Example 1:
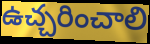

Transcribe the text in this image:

ఉచ్చరించాలి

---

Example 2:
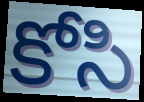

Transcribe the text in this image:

కోసి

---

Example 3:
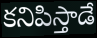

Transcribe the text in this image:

కనిపిస్తాడే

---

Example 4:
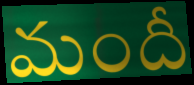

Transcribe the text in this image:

మందీ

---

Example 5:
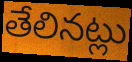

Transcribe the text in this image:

తేలినట్లు